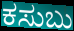
ಕಸುಬು